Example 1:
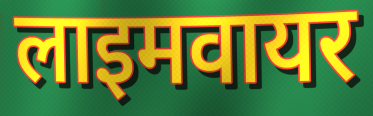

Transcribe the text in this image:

लाइमवायर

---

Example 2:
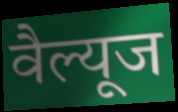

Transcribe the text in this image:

वैल्यूज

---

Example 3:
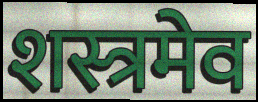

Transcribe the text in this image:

शस्त्रमेव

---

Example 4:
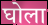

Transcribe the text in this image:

घोला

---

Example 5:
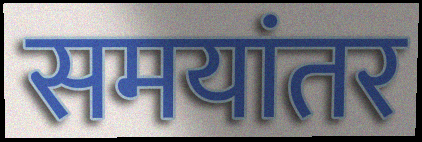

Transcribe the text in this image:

समयांतर